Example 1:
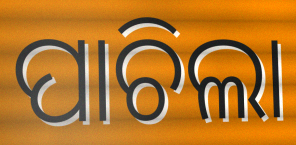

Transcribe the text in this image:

ପାଚିଲା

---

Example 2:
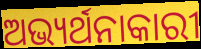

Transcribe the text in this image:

ଅଭ୍ୟର୍ଥନାକାରୀ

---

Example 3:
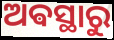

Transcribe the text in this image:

ଅଵସ୍ଥାରୁ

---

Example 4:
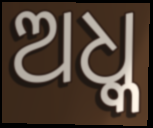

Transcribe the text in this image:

ଅଧ୍କ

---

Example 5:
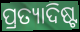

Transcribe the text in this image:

ପ୍ରତ୍ୟାଦିଷ୍ଟ